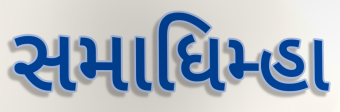
સમાધિમ્હા